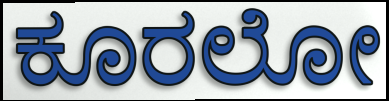
ಕೂರಲೋ